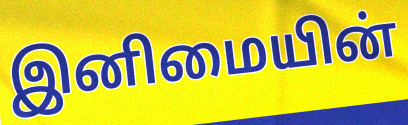
இனிமையின்